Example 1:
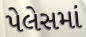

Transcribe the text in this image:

પેલેસમાં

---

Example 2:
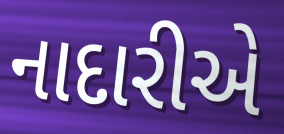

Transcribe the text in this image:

નાદારીએ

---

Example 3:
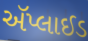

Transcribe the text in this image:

ઍપ્લાઈડ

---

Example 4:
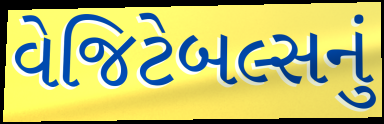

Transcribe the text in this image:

વેજિટેબલ્સનું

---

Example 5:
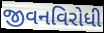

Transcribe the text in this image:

જીવનવિરોધી